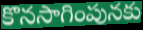
కొనసాగింపునకు